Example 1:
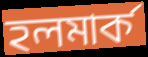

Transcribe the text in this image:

হলমার্ক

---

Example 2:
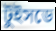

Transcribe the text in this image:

টুইসডে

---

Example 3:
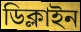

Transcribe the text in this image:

ডিক্লাইন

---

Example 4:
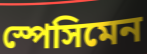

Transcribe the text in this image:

স্পেসিমেন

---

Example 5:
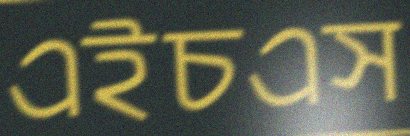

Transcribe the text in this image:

এইচএস